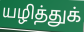
யழித்துக்